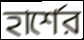
হার্শের